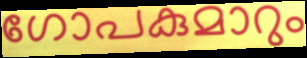
ഗോപകുമാറും